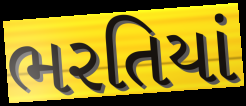
ભરતિયાં